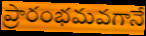
ప్రారంభమవగానే